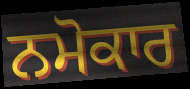
ਨਮੋਕਾਰ